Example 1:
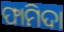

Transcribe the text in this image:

ଫାମିଦା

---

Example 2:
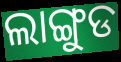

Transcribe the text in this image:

ଲାଙ୍ଗୁଡ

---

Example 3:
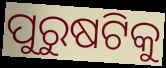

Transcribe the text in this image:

ପୁରୁଷଟିକୁ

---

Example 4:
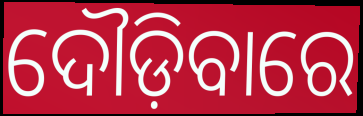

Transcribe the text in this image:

ଦୌଡ଼ିବାରେ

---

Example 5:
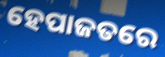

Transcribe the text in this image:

ହେପାଜତରେ